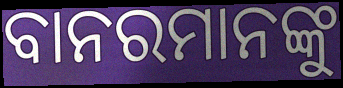
ବାନରମାନଙ୍କୁ